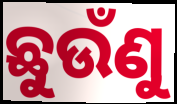
ଛୁଉଁଣୁ